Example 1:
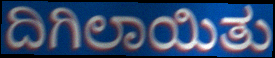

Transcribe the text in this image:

ದಿಗಿಲಾಯಿತು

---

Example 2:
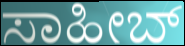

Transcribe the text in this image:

ಸಾಹೀಬ್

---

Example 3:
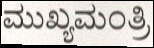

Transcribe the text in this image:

ಮುಖ್ಯಮಂತ್ರಿ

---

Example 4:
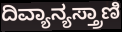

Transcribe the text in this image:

ದಿವ್ಯಾನ್ಯಸ್ತ್ರಾಣಿ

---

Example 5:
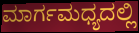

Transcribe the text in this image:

ಮಾರ್ಗಮಧ್ಯದಲ್ಲಿ